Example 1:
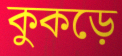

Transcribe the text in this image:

কুকড়ে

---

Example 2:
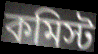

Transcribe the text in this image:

কমিস্ট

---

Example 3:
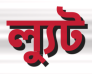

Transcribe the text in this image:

ল্যুট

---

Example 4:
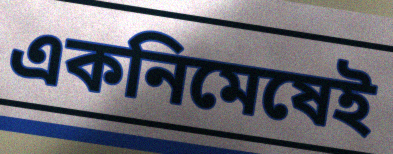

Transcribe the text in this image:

একনিমেষেই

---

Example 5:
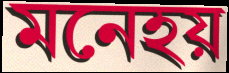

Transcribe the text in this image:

মনেহয়